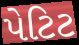
પેટિટ